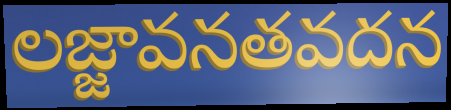
లజ్జావనతవదన